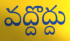
వద్దొద్దు